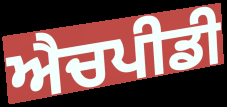
ਐਚਪੀਡੀ